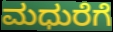
ಮಧುರೆಗೆ